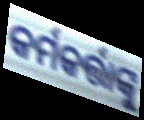
କର୍ମକର୍ତ୍ତାଙ୍କୁ